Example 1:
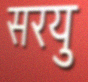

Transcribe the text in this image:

सरयु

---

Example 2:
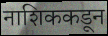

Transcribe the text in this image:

नाशिककडून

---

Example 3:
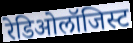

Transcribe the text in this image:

रेडिओलॉजिस्ट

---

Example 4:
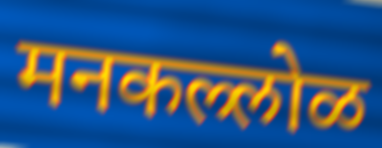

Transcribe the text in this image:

मनकल्लोळ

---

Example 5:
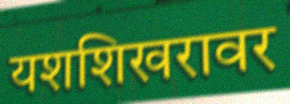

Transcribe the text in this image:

यशशिखरावर